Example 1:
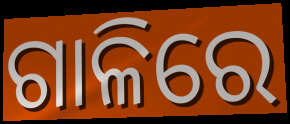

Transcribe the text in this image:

ଗାଳିରେ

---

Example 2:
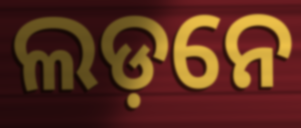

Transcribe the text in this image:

ଲଡ଼ନେ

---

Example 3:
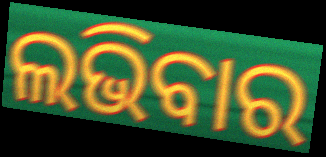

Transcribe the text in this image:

ଲଭିବାର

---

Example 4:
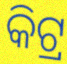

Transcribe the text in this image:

କିଟ୍ର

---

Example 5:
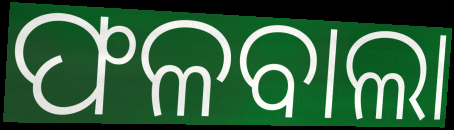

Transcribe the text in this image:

ଫଳବାଲା